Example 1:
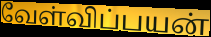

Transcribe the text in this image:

வேள்விப்பயன்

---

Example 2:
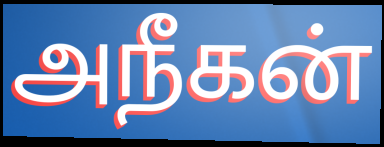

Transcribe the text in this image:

அநீகன்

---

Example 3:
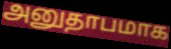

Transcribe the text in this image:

அனுதாபமாக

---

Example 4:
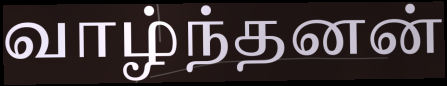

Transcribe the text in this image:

வாழ்ந்தனன்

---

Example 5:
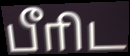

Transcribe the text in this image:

பீரிட